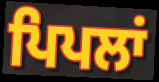
ਪਿਪਲਾਂ